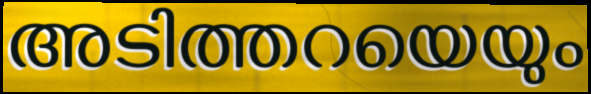
അടിത്തറയെയും